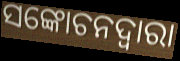
ସଙ୍କୋଚନଦ୍ୱାରା